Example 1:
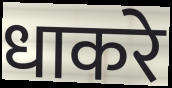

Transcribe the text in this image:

धाकरे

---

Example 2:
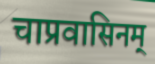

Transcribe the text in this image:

चाप्रवासिनम्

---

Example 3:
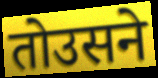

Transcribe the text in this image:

तोउसने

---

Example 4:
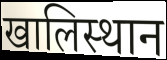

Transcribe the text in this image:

खालिस्थान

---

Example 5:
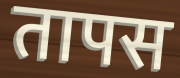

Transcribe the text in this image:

तापस